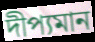
দীপ্যমান